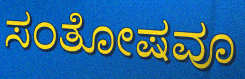
ಸಂತೋಷವೂ